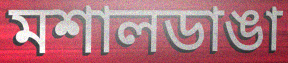
মশালডাঙা